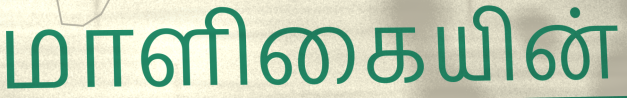
மாளிகையின்